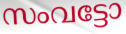
സംവട്ടോ